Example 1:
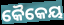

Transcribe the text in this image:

କୈକେୟ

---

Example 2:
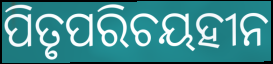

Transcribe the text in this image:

ପିତୃପରିଚୟହୀନ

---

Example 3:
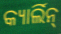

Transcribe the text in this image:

କ୍ୟାର୍ଲିନ୍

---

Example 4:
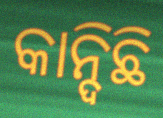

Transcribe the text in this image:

କାନ୍ଦିଛି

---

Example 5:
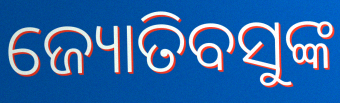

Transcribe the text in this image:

ଜ୍ୟୋତିବସୁଙ୍କ